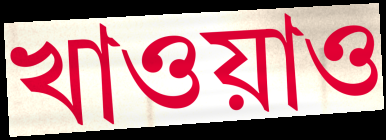
খাওয়াও